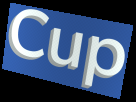
Cup